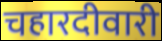
चहारदीवारी